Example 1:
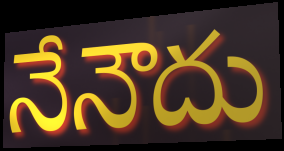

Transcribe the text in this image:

నేనౌదు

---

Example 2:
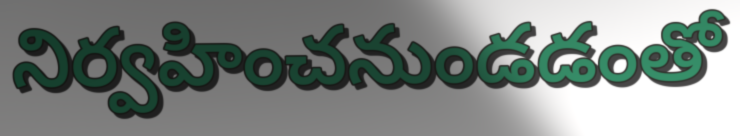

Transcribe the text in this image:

నిర్వహించనుండడంతో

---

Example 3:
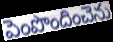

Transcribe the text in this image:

పెంపొందించెను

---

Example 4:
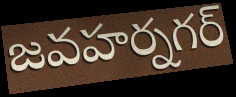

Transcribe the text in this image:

జవహర్నగర్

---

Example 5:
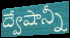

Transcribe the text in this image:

ద్వేషాన్నీ